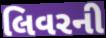
લિવરની